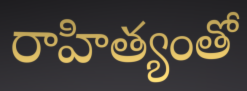
రాహిత్యంతో